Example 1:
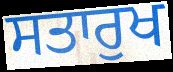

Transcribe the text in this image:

ਸਤਾਰੁਖ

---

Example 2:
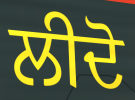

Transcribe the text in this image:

ਲੀਦੋ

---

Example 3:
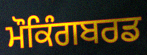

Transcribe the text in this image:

ਮੌਕਿੰਗਬਰਡ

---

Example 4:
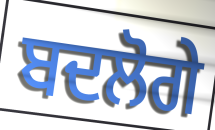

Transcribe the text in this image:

ਬਦਲੋਗੇ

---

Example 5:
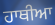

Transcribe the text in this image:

ਹਾਥੀਆ